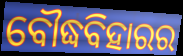
ବୌଦ୍ଧବିହାରର